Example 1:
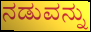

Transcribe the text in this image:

ನಡುವನ್ನು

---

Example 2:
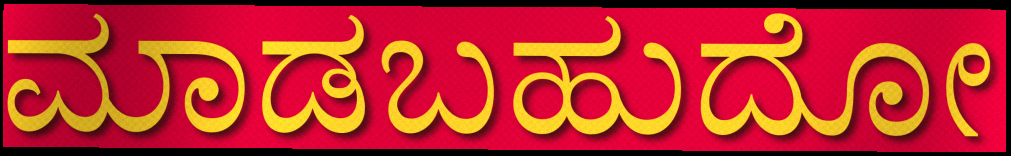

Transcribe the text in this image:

ಮಾಡಬಹುದೋ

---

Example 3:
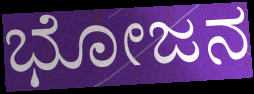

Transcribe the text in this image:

ಭೋಜನ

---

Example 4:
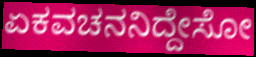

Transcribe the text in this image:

ಏಕವಚನನಿದ್ದೇಸೋ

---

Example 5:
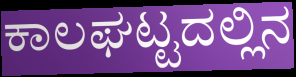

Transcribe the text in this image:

ಕಾಲಘಟ್ಟದಲ್ಲಿನ